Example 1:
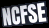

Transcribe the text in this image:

NCFSE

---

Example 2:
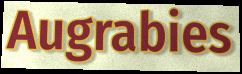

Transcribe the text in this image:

Augrabies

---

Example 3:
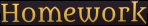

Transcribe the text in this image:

Homework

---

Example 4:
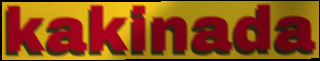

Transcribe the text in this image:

kakinada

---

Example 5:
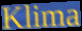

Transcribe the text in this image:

Klima